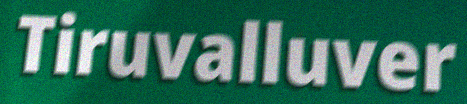
Tiruvalluver